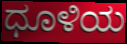
ಧೂಳಿಯ